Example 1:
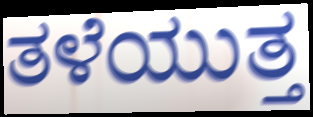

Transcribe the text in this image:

ತಳೆಯುತ್ತ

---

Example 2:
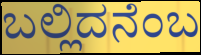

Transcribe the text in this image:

ಬಲ್ಲಿದನೆಂಬ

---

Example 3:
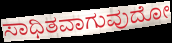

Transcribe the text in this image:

ಸಾಧಿತವಾಗುವುದೋ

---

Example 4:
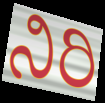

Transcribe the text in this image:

ನಿರಿ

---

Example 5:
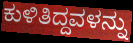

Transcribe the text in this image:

ಕುಳಿತಿದ್ದವಳನ್ನು